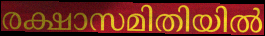
രക്ഷാസമിതിയിൽ